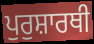
ਪੁਰੁਸ਼ਾਰਥੀ